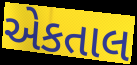
એકતાલ